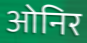
ओनिर